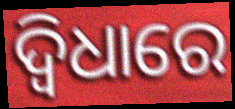
ଦ୍ଵିଧାରେ